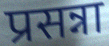
प्रसन्ना